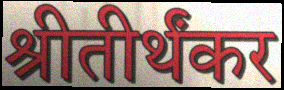
श्रीतीर्थंकर